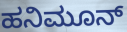
ಹನಿಮೂನ್